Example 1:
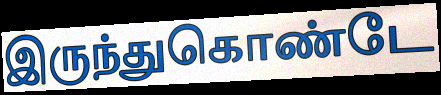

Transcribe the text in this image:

இருந்துகொண்டே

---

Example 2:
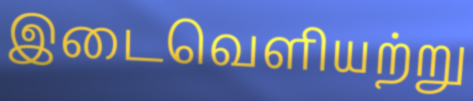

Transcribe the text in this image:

இடைவெளியற்று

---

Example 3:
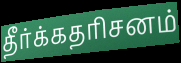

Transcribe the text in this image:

தீர்க்கதரிசனம்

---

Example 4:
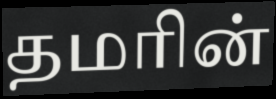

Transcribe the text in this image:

தமரின்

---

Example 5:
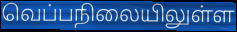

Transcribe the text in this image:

வெப்பநிலையிலுள்ள